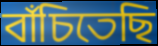
বাঁচিতেছি